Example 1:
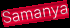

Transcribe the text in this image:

Samanya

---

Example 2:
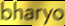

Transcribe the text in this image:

bharyo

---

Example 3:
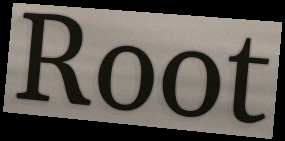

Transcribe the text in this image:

Root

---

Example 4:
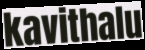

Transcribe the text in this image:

kavithalu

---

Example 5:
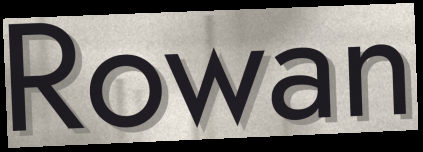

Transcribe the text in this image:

Rowan